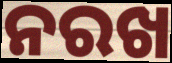
ନରଖ